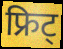
फ्रिट्